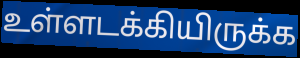
உள்ளடக்கியிருக்க